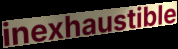
inexhaustible